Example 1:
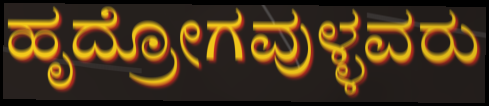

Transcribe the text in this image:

ಹೃದ್ರೋಗವುಳ್ಳವರು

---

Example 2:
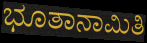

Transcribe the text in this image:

ಭೂತಾನಾಮಿತಿ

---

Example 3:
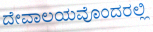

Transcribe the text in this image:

ದೇವಾಲಯವೊಂದರಲ್ಲಿ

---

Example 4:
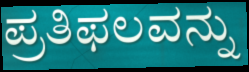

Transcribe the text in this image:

ಪ್ರತಿಫಲವನ್ನು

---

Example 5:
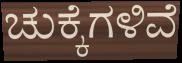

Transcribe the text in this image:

ಚುಕ್ಕೆಗಳಿವೆ